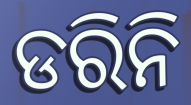
ଡରିନି